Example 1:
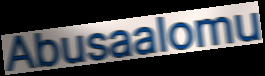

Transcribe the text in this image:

Abusaalomu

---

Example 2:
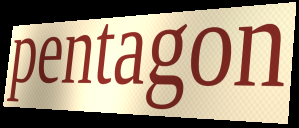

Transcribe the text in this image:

pentagon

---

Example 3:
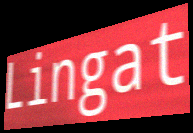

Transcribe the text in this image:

Lingat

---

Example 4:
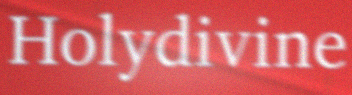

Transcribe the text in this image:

Holydivine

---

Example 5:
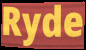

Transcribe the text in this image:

Ryde